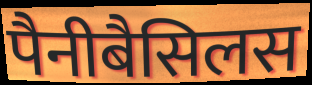
पैनीबैसिलस